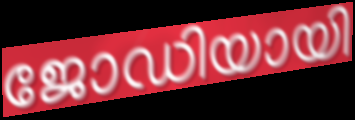
ജോഡിയായി